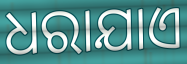
ଧରାଯାଏ